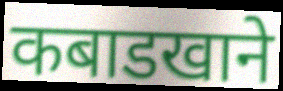
कबाडखाने